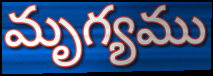
మృగ్యము